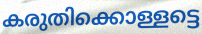
കരുതിക്കൊള്ളട്ടെ